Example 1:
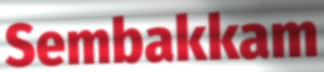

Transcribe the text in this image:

Sembakkam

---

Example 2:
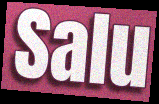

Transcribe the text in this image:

Salu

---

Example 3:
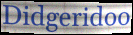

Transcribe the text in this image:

Didgeridoo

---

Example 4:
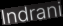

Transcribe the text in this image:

Indrani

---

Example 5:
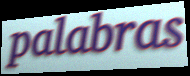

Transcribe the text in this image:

palabras